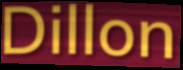
Dillon